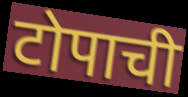
टोपाची